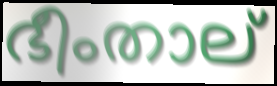
ഭീംതാല്